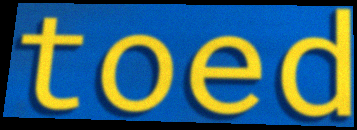
toed